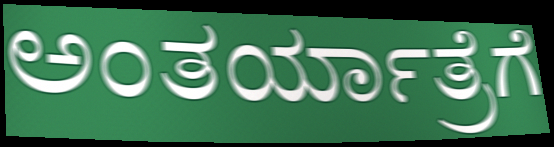
ಅಂತರ್ಯಾತ್ರೆಗೆ